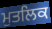
ਮੁਤਲਿਕ